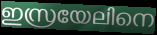
ഇസ്രയേലിനെ